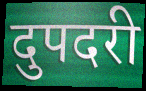
दुपदरी